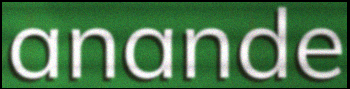
anande